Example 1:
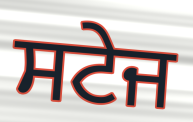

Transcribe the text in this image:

ਸਟੇਜ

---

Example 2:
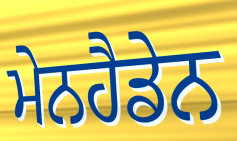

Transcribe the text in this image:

ਮੇਨਹੈਡੇਨ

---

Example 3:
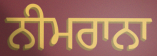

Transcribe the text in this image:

ਨੀਮਰਾਨਾ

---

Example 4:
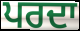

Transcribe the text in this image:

ਪਰਦਾ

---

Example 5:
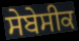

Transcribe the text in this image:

ਸੇਬੇਸੀਕ